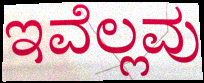
ಇವೆಲ್ಲವು